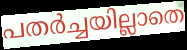
പതർച്ചയില്ലാതെ